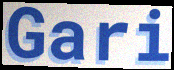
Gari